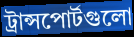
ট্রান্সপোর্টগুলো